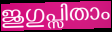
ജുഗുപ്സിതാം